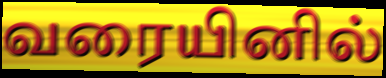
வரையினில்